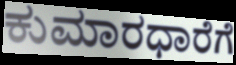
ಕುಮಾರಧಾರೆಗೆ